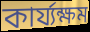
কাৰ্য্যক্ষম